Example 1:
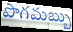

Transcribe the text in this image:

పొగమబ్బు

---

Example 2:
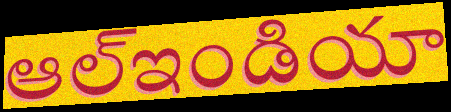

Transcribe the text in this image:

ఆల్ఇండియా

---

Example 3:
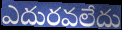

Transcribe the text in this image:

ఎదురవలేదు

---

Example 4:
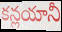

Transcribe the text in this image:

కన్లయానీ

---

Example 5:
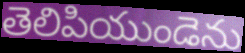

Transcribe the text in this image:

తెలిపియుండెను